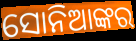
ସୋନିଆଙ୍କର